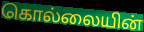
கொல்லையின்